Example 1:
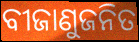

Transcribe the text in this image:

ବୀଜାଣୁଜନିତ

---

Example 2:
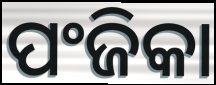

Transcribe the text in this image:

ପଂଜିକା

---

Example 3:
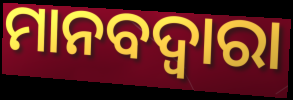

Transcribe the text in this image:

ମାନବଦ୍ୱାରା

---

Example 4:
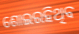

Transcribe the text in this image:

ଶୋଇରହିଥିବ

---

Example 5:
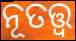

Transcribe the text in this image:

ନୂତତ୍ତ୍ବ